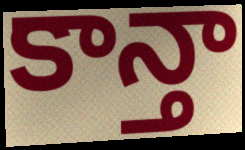
కాన్తా